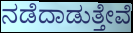
ನಡೆದಾಡುತ್ತೇವೆ